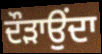
ਦੌੜਾਉਂਦਾ